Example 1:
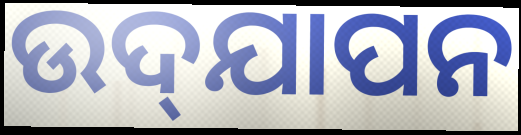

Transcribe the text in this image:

ଉଦ୍‌ଯାପନ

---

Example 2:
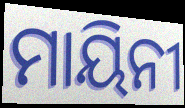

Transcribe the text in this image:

ମାୟିନୀ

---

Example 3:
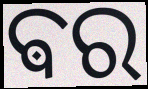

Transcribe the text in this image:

ଵର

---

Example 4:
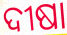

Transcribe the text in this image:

ଦୀଷା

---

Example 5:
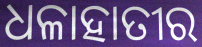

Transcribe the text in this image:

ଧଳାହାତୀର